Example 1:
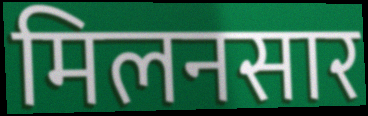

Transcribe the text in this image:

मिलनसार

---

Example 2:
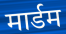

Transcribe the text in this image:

मार्डम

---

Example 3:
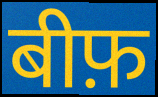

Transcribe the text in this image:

बीफ़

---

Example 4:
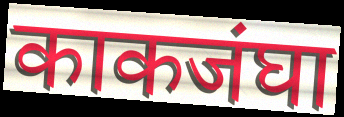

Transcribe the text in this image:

काकजंघा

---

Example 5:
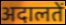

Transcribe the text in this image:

अदालतें